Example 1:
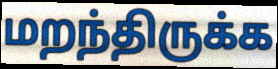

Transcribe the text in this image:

மறந்திருக்க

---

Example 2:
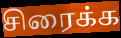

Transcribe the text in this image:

சிரைக்க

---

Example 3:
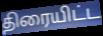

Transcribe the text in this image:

திரையிட்ட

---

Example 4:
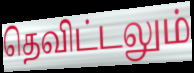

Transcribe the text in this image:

தெவிட்டலும்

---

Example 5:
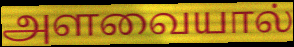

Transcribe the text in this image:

அளவையால்